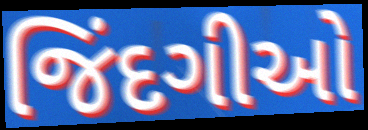
જિંદગીઓ